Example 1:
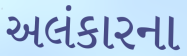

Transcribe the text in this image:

અલંકારના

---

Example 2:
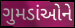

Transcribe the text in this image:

ગુમડાંઓને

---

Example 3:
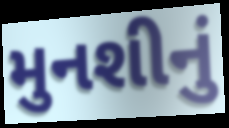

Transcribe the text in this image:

મુનશીનું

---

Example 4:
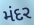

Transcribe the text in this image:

મંદર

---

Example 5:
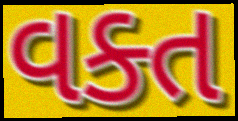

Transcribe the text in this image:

વક્ત